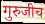
गुरुजीच